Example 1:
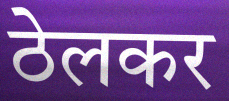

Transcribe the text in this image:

ठेलकर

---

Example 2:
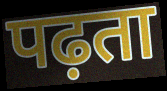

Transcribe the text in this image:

पढ़ता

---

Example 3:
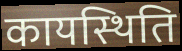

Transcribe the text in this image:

कायस्थिति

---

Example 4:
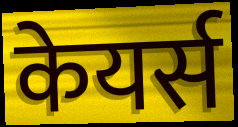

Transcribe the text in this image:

केयर्स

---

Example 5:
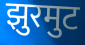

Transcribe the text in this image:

झुरमुट